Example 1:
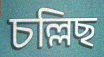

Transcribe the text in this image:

চল্লিছ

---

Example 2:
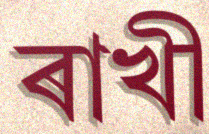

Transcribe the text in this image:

ৰাখী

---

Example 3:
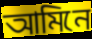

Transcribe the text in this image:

আমিনে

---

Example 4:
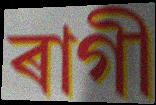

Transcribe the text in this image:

ৰাগী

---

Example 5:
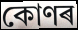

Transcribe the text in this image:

কোণৰ